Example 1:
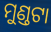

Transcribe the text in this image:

ମୁଣ୍ଡଟା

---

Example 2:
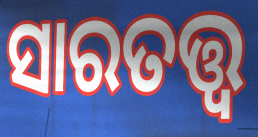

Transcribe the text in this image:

ସାରତତ୍ତ୍ଵ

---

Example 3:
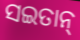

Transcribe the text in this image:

ସଇତାନ୍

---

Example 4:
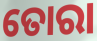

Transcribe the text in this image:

ତୋରା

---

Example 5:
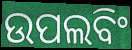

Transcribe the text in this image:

ଉପଲବିଂ